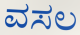
ವಸಲ